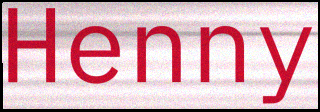
Henny